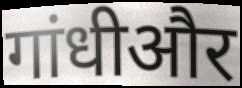
गांधीऔर